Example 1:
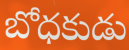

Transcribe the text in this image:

బోధకుడు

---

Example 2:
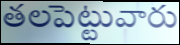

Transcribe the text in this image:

తలపెట్టువారు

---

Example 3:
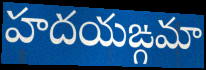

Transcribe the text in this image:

హదయఙ్గమా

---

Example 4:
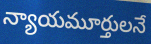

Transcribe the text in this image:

న్యాయమూర్తులనే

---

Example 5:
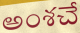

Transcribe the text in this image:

అంశచే